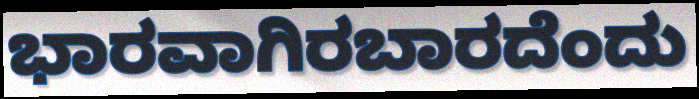
ಭಾರವಾಗಿರಬಾರದೆಂದು